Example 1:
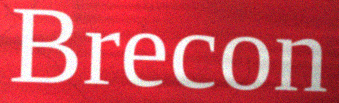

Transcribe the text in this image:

Brecon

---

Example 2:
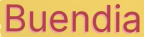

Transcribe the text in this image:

Buendia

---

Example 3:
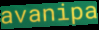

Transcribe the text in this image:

avanipa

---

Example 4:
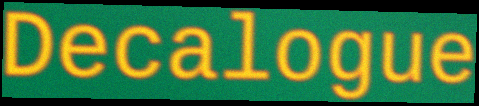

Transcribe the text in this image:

Decalogue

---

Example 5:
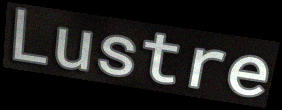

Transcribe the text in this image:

Lustre